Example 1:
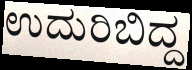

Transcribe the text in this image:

ಉದುರಿಬಿದ್ದ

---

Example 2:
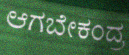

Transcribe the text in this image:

ಆಗಬೇಕಂದ್ರ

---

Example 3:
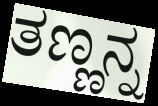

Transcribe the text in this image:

ತಣ್ಣನ್ನ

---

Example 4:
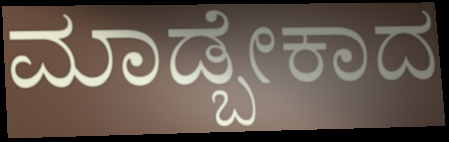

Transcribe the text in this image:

ಮಾಡ್ಬೇಕಾದ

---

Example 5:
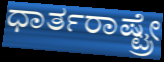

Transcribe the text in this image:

ಧಾರ್ತರಾಷ್ಟ್ರೇ